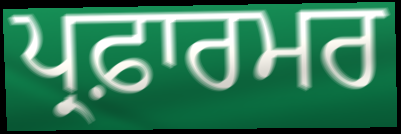
ਪ੍ਰਫ਼ਾਰਮਰ